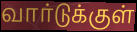
வார்டுக்குள்